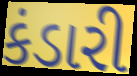
કંડારી